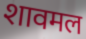
शावमल